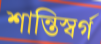
শান্তিস্বর্গ